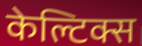
केल्टिक्स